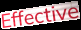
Effective